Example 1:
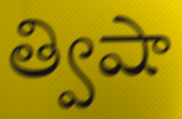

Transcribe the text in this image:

త్విషా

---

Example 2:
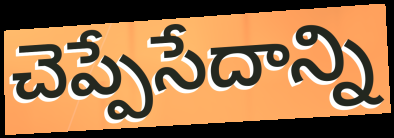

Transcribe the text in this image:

చెప్పేసేదాన్ని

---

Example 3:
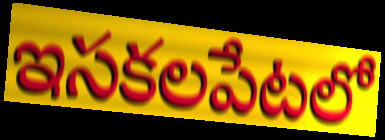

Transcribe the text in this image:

ఇసకలపేటలో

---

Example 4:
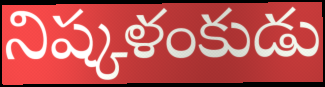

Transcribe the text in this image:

నిష్కళంకుడు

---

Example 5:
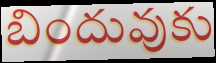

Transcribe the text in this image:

బిందువుకు